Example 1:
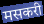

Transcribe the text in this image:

मसकरी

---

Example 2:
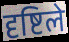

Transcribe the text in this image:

दृष्टिले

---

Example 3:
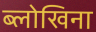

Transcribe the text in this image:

ब्लोखिना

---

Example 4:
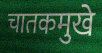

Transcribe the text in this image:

चातकमुखे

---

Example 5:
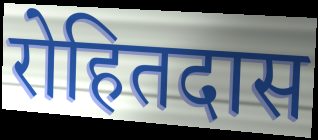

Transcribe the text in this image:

रोहितदास